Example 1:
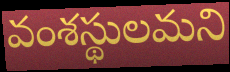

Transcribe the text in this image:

వంశస్థులమని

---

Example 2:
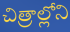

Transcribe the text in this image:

చిత్రాల్లోని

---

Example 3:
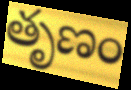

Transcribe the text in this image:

తృణం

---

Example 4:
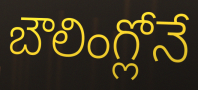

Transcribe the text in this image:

బౌలింగ్లోనే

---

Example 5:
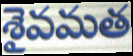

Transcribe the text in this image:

శైవమత